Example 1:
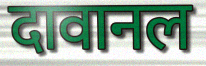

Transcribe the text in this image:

दावानल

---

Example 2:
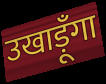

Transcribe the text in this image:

उखाड़ूँगा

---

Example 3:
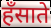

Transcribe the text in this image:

हँसाते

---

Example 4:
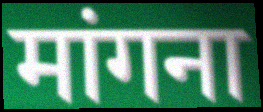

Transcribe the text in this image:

मांगना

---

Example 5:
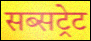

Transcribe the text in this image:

सब्सट्रेट